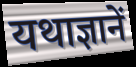
यथाज्ञानें